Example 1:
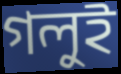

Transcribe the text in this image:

গলুই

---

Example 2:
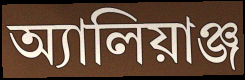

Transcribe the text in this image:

অ্যালিয়াঞ্জ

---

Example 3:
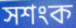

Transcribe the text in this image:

সশংক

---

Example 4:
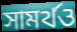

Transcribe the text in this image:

সামর্থও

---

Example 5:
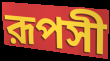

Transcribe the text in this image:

রূপসী